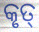
କୃତ୍